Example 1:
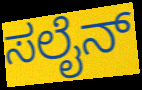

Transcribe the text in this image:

ಸಲೈನ್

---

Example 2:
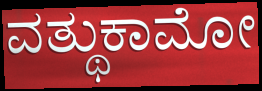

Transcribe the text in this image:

ವತ್ಥುಕಾಮೋ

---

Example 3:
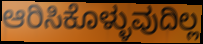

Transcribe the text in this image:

ಆರಿಸಿಕೊಳ್ಳುವುದಿಲ್ಲ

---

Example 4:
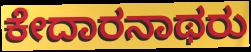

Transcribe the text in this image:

ಕೇದಾರನಾಥರು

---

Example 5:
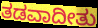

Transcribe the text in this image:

ತಡವಾದೀತು